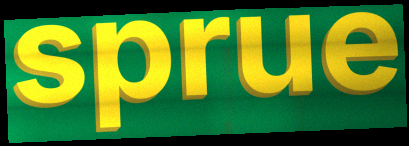
sprue